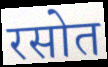
रसोत